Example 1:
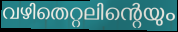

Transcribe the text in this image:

വഴിതെറ്റലിന്റെയും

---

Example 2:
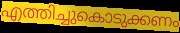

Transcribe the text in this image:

എത്തിച്ചുകൊടുക്കണം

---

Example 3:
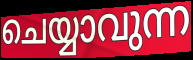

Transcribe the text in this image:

ചെയ്യാവുന്ന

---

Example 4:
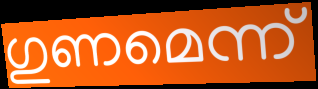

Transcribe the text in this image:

ഗുണമെന്ന്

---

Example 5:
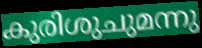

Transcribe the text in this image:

കുരിശുചുമന്നു